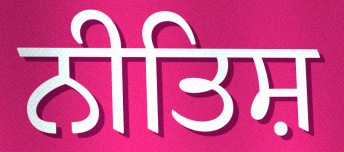
ਨੀਤਿਸ਼